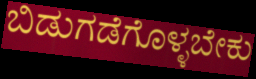
ಬಿಡುಗಡೆಗೊಳ್ಳಬೇಕು